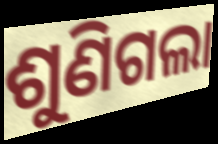
ଶୁଣିଗଲା